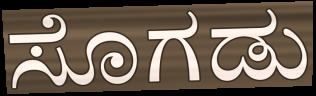
ಸೊಗಡು